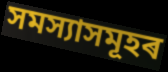
সমস্যাসমূহৰ